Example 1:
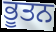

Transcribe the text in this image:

ਭੂਤਨ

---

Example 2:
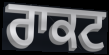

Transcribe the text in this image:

ਰਾਕਟ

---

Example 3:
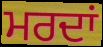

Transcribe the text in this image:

ਮਰਦਾਂ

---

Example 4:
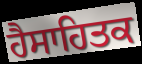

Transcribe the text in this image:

ਹੈਸਾਹਿਤਕ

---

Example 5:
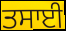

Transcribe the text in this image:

ਤਸਾਈ